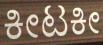
ಕೀಟಕೀ